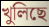
খুলিছে